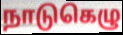
நாடுகெழு